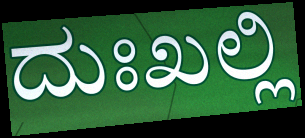
ದುಃಖಲ್ಲಿ